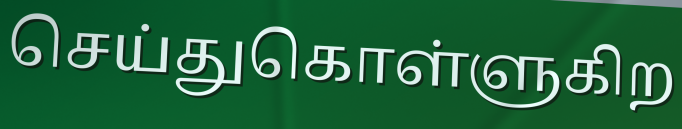
செய்துகொள்ளுகிற